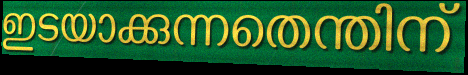
ഇടയാക്കുന്നതെന്തിന്